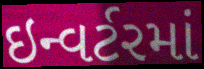
ઇન્વર્ટરમાં